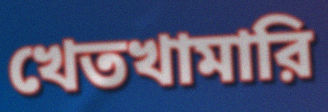
খেতখামারি